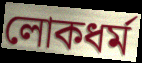
লোকধর্ম